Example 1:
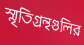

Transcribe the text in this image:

স্মৃতিগ্রন্থগুলির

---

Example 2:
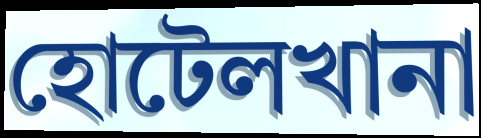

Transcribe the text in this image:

হোটেলখানা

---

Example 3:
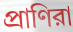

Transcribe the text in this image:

প্রাণিরা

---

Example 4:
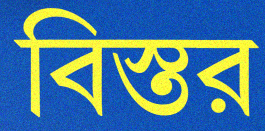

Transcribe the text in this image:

বিস্তর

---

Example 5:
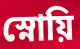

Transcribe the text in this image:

স্নোয়ি